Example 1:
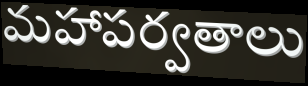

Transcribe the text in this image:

మహాపర్వతాలు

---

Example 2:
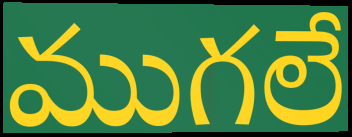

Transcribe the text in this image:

ముగలే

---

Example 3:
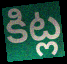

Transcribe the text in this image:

కిట్ల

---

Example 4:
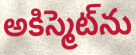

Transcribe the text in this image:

అకిస్మెట్‌ను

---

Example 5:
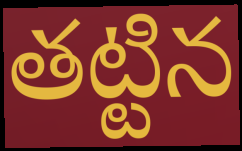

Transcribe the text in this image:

తట్టిన